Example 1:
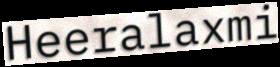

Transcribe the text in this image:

Heeralaxmi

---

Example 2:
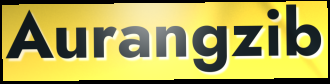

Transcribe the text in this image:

Aurangzib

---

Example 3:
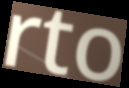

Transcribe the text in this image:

rto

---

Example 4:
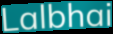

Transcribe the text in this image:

Lalbhai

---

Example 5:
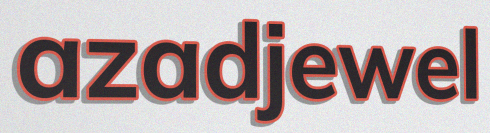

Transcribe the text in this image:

azadjewel